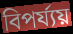
বিপৰ্য্যয়